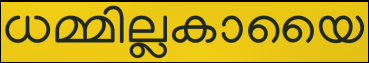
ധമ്മില്ലകായൈ